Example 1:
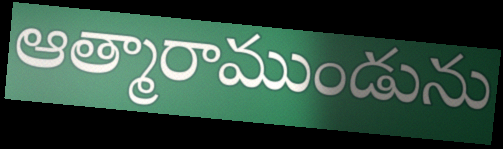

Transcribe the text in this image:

ఆత్మారాముండును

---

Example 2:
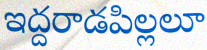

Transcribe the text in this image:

ఇద్దరాడపిల్లలూ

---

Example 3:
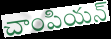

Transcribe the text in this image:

చాంపియన్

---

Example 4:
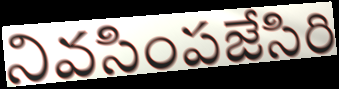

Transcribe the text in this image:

నివసింపజేసిరి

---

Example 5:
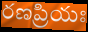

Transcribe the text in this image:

రణప్రియః